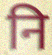
नि